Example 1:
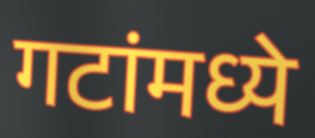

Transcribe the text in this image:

गटांमध्ये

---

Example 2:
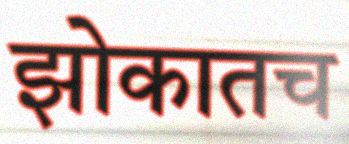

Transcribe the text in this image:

झोकातच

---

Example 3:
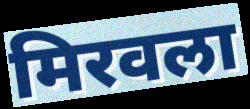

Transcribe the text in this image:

मिरवला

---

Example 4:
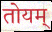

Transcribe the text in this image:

तोयम्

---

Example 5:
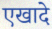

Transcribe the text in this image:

एखादे